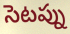
సెటప్ను